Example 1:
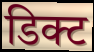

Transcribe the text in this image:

डिक्ट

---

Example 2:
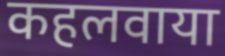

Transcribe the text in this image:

कहलवाया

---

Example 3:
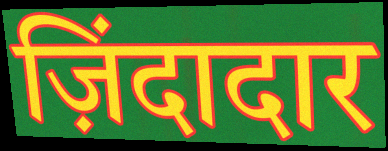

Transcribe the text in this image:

ज़िंदादार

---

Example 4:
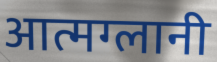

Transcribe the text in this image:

आत्मग्लानी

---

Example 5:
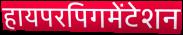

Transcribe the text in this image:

हायपरपिगमेंटेशन